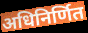
अधिनिर्णित